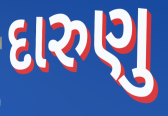
દારુણુ